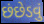
છંછેડવું